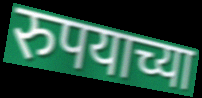
रुपयाच्या